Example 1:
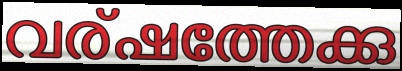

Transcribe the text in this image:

വര്ഷത്തേക്കു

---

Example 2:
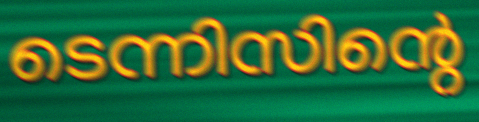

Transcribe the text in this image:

ടെന്നിസിന്റെ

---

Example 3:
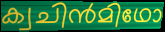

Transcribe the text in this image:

ക്വചിൻമിഥോ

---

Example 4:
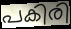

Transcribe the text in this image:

പകിരി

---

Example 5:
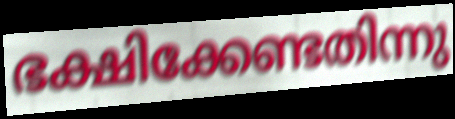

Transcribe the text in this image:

ഭക്ഷിക്കേണ്ടതിന്നു